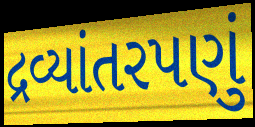
દ્રવ્યાંતરપણું